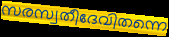
സരസ്വതീദേവിതന്നെ